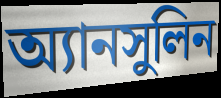
অ্যানসুলিন